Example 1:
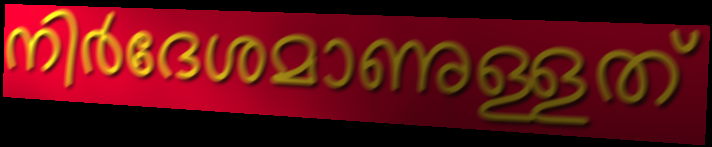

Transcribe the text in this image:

നിർദേശമാണുള്ളത്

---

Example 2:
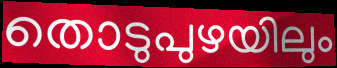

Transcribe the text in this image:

തൊടുപുഴയിലും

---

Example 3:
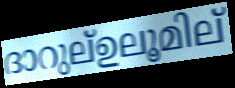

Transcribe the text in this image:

ദാറുല്ഉലൂമില്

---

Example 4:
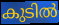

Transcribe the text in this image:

കുടിൽ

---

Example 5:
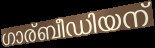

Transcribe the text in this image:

ഗാര്ബീഡിയന്